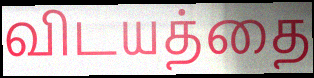
விடயத்தை